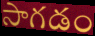
సాగడం